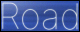
Road